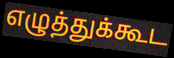
எழுத்துக்கூட